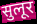
सुलूर